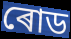
ৰোড